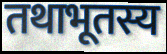
तथाभूतस्य